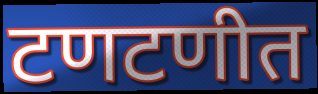
टणटणीत